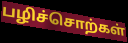
பழிச்சொற்கள்